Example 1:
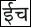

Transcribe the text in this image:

ईच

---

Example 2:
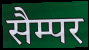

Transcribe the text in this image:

सैम्पर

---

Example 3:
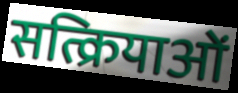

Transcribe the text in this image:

सत्क्रियाओं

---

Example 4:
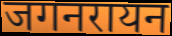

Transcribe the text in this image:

जगनरायन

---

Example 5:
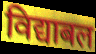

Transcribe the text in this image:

विद्याबल